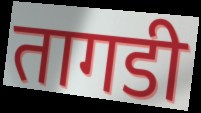
तागडी